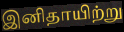
இனிதாயிற்று